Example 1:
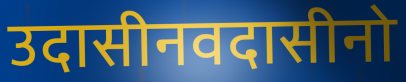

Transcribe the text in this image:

उदासीनवदासीनो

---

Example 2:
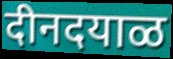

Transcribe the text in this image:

दीनदयाळ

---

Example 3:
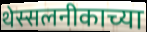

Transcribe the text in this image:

थेस्सलनीकाच्या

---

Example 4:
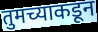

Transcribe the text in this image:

तुमच्याकडून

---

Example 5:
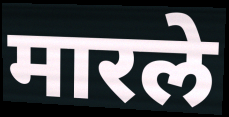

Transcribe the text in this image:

मारले